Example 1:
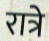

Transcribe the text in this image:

रात्रे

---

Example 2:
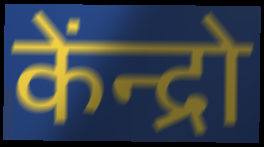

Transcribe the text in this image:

केंन्द्रो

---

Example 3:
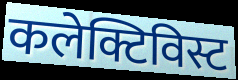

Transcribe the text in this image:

कलेक्टिविस्ट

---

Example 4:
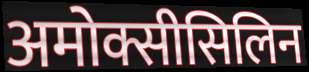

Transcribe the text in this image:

अमोक्सीसिलिन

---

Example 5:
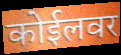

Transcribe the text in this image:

कोईलवर